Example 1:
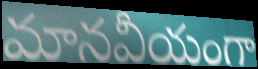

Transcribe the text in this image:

మానవీయంగా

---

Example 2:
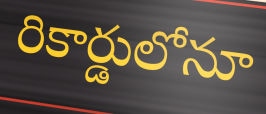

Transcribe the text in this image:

రికార్డులోనూ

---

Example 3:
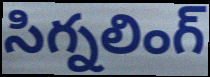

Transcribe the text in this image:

సిగ్నలింగ్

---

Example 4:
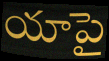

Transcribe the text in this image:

యాపై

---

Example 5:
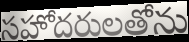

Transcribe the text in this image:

సహోదరులతోను